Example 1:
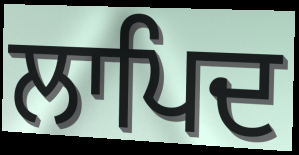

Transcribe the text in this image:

ਲਾਪਿਦ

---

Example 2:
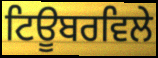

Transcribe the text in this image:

ਟਿਊਬਰਵਿਲੇ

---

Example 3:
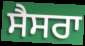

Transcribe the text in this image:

ਸੈਸਰਾ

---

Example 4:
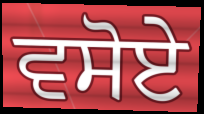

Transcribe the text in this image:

ਵਸੋਏ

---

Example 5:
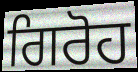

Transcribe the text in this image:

ਗਿਰੋਹ